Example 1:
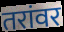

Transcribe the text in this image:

तरांवर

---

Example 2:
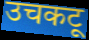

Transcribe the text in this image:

उचकटू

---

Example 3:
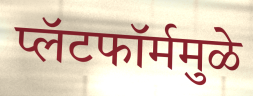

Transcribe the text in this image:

प्लॅटफॉर्ममुळे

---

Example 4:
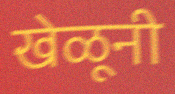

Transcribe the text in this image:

खेळूनी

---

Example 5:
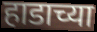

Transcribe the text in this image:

हाडाच्या